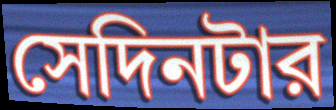
সেদিনটার